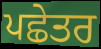
ਪਛੇਤਰ